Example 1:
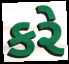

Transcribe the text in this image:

કરે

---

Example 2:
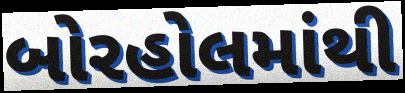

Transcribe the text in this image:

બોરહોલમાંથી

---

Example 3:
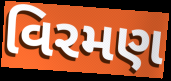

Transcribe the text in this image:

વિરમણ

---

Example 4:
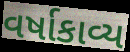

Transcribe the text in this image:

વર્ષાકાવ્ય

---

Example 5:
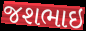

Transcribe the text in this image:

જશભાઇ